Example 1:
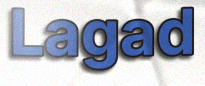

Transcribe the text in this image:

Lagad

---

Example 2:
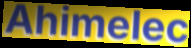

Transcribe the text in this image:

Ahimelec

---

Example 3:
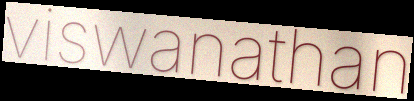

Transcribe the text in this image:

viswanathan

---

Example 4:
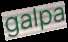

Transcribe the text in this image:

galpa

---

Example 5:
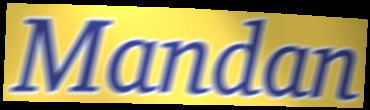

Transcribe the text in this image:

Mandan